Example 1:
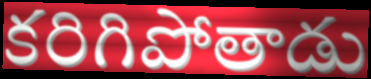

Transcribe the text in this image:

కరిగిపోతాడు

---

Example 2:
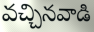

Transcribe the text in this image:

వచ్చినవాడి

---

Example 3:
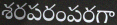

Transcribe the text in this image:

శరపరంపరగా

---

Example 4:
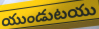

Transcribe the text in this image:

యుండుటయు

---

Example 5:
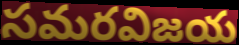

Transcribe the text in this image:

సమరవిజయ